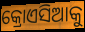
କ୍ରୋଏସିଆକୁ